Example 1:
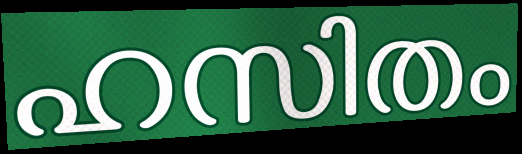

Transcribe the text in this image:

ഹസിതം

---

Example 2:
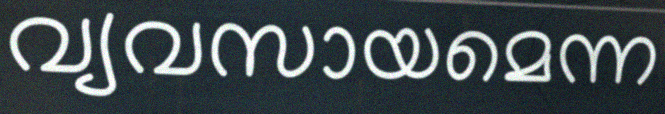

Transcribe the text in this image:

വ്യവസായമെന്ന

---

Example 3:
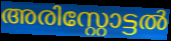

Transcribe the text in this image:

അരിസ്റ്റോട്ടൽ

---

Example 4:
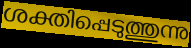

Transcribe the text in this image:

ശക്തിപ്പെടുത്തുന്നു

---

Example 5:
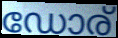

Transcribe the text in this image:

ഡോര്